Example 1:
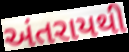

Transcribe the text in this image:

અંતરાયથી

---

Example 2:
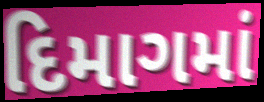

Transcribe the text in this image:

દિમાગમાં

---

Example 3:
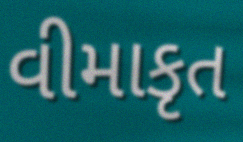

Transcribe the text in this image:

વીમાકૃત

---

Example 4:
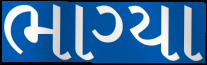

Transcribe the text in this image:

ભાગ્યા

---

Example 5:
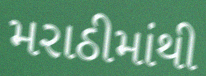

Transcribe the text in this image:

મરાઠીમાંથી